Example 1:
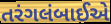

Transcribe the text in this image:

તરંગલંબાઈએ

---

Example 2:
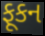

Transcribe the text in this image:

ફૂકન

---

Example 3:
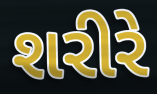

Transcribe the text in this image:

શરીરે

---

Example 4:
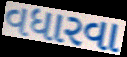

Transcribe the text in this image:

વધારવા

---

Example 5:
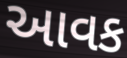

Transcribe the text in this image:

આવક